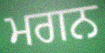
ਮਗਨ